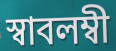
স্বাবলম্বী